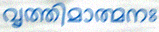
വൃത്തിമാത്മനഃ